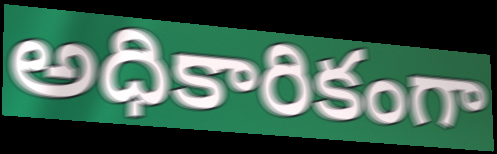
అధికారికంగా